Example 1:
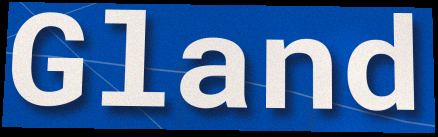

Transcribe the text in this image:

Gland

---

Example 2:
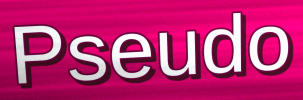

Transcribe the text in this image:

Pseudo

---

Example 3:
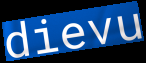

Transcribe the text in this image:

dievu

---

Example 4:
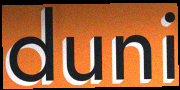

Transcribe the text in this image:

duni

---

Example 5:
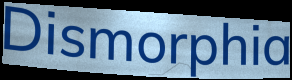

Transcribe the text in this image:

Dismorphia